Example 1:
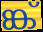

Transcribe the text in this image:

ങ്ക്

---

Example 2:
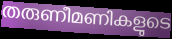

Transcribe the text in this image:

തരുണീമണികളുടെ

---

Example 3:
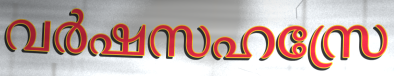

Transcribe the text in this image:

വർഷസഹസ്രേ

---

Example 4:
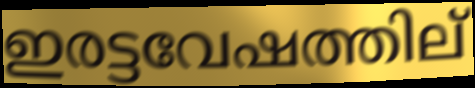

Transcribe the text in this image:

ഇരട്ടവേഷത്തില്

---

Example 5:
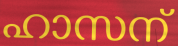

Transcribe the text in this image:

ഹാസന്